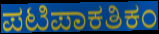
ಪಟಿಪಾಕತಿಕಂ